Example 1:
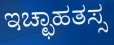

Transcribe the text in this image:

ಇಚ್ಛಾಹತಸ್ಸ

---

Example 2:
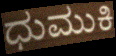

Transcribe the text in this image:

ಧುಮುಕಿ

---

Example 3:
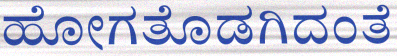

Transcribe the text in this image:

ಹೋಗತೊಡಗಿದಂತೆ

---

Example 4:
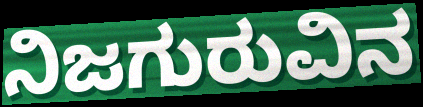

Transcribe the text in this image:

ನಿಜಗುರುವಿನ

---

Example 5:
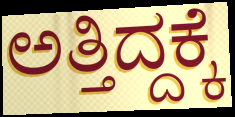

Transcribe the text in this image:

ಅತ್ತಿದ್ದಕ್ಕೆ